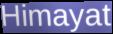
Himayat